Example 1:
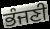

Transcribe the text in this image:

ਭੰਜਣੀ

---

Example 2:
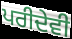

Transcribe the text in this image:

ਪਰੀਦੇਵੀ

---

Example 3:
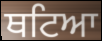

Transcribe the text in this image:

ਥਟਿਆ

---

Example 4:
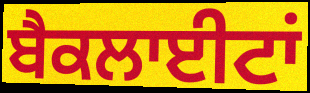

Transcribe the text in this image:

ਬੈਕਲਾਈਟਾਂ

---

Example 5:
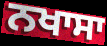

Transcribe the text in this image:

ਨਖਾਸਾ